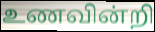
உணவின்றி